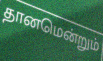
தானமென்றும்